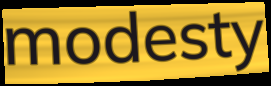
modesty